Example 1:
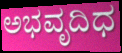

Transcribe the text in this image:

ಅಭವೃದಿಧ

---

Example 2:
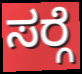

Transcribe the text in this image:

ಸರ್‍ಗೆ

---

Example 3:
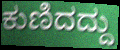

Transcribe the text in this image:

ಕುಣಿದದ್ದು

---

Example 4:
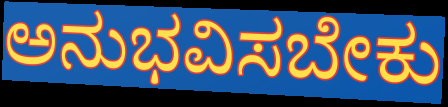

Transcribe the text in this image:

ಅನುಭವಿಸಬೇಕು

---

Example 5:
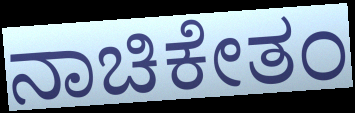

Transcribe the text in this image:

ನಾಚಿಕೇತಂ